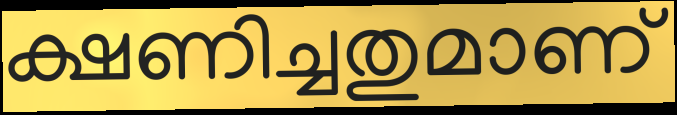
ക്ഷണിച്ചതുമാണ്